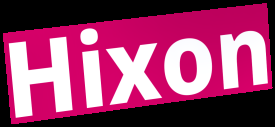
Hixon